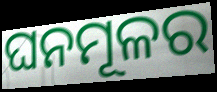
ଘନମୂଳର